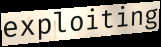
exploiting